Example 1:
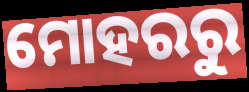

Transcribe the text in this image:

ମୋହରରୁ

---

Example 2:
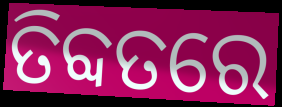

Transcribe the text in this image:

ତିବ୍ଦତରେ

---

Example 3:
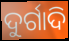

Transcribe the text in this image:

ଦୁର୍ଗାଦି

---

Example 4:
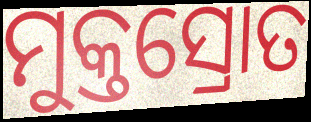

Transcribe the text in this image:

ମୁକ୍ତସ୍ରୋତ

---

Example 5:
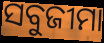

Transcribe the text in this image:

ସବୁଜୀମା